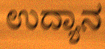
ಉದ್ಯಾನ